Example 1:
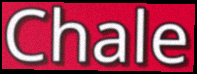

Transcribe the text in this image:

Chale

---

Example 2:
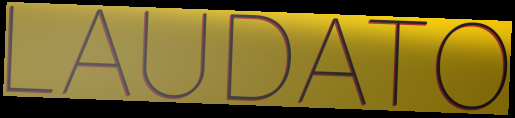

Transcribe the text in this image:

LAUDATO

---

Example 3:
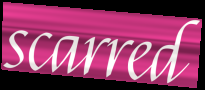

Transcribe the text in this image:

scarred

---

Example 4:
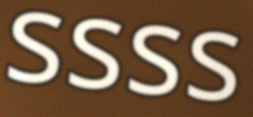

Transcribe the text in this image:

ssss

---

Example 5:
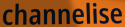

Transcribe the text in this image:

channelise